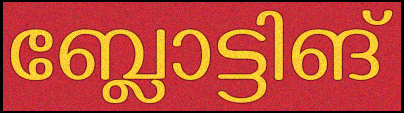
ബ്ലോട്ടിങ്